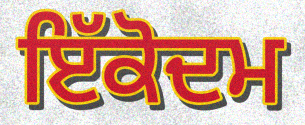
ਇੱਕੋਦਮ